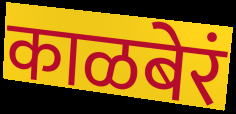
काळबेरं